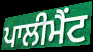
ਪਾਲੀਮੈਂਟ